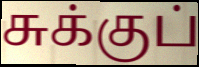
சுக்குப்